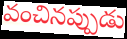
వంచినప్పుడు